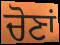
ਚੋਣਾਂ